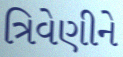
ત્રિવેણીને